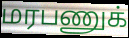
மரபணுக்